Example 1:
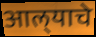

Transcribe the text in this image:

आल्याचे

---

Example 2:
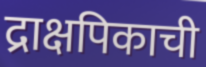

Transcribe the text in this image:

द्राक्षपिकाची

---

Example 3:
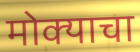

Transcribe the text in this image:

मोक्याचा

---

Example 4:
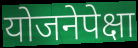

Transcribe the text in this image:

योजनेपेक्षा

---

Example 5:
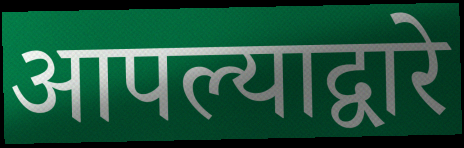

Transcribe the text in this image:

आपल्याद्वारे